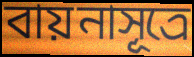
বায়নাসূত্রে